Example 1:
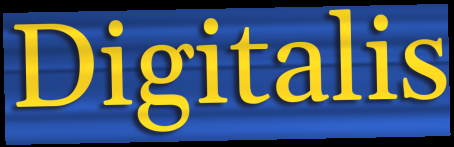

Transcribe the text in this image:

Digitalis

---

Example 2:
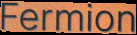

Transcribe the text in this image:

Fermion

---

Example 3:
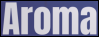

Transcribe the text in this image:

Aroma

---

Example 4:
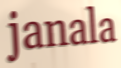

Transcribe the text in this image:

janala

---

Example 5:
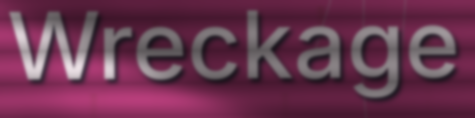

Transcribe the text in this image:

Wreckage